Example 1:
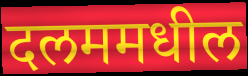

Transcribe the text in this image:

दलममधील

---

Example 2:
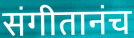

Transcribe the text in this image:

संगीतानंच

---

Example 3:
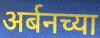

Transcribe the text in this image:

अर्बनच्या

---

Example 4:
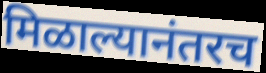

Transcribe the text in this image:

मिळाल्यानंतरच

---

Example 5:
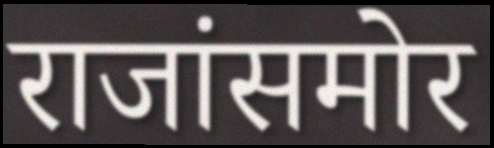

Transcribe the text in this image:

राजांसमोर